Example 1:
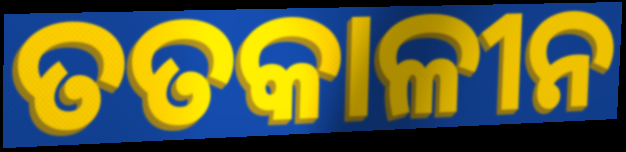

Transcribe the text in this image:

ତତକାଳୀନ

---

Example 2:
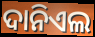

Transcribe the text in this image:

ଦାନିଏଲ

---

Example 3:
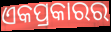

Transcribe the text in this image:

ଏକପ୍ରକାରର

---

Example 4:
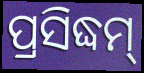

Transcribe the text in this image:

ପ୍ରସିଦ୍ଧମ୍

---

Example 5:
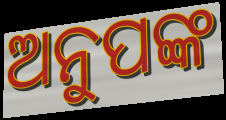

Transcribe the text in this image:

ଅନୁପଙ୍କ